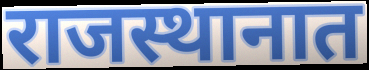
राजस्थानात